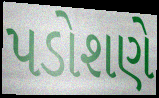
પડોશણે